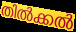
തിൽക്കൽ